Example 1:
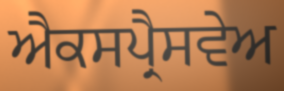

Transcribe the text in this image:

ਐਕਸਪ੍ਰੈਸਵੇਅ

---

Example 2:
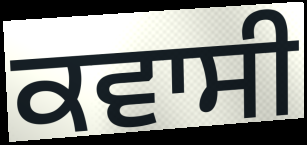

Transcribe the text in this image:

ਕਵਾਸੀ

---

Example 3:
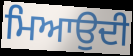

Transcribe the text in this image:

ਮਿਆਉਦੀ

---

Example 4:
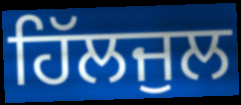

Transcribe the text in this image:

ਹਿੱਲਜੁਲ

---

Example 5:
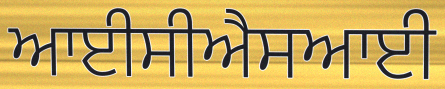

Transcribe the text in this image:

ਆਈਸੀਐਸਆਈ